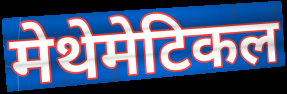
मेथेमेटिकल